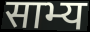
साभ्य